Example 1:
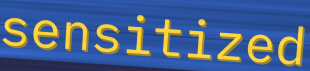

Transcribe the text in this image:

sensitized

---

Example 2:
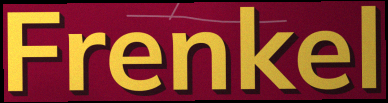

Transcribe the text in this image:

Frenkel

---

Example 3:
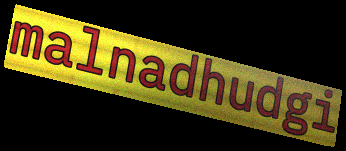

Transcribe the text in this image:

malnadhudgi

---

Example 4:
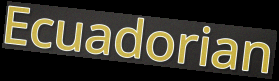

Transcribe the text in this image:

Ecuadorian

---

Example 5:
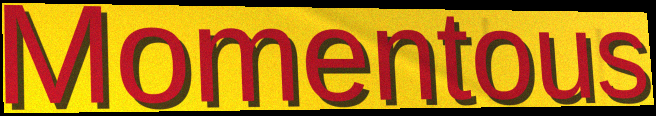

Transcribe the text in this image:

Momentous